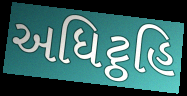
અધિટ્ઠહિ